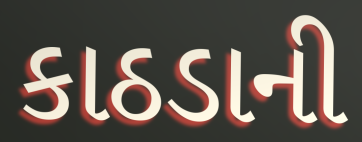
કાઠડાની